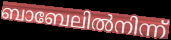
ബാബേലിൽനിന്ന്